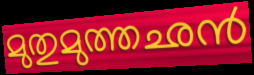
മുതുമുത്തഛൻ